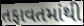
તફાવતમાંથી